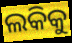
ଲକିକୁ